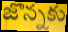
జొన్నకు